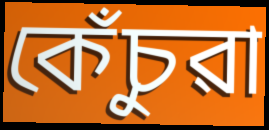
কেঁচুৱা